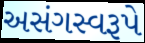
અસંગસ્વરૂપે